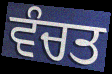
ਵੰਚਤ